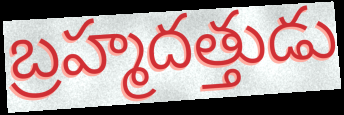
బ్రహ్మదత్తుడు